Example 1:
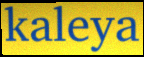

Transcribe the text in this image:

kaleya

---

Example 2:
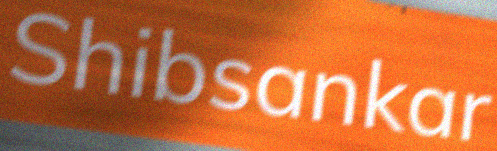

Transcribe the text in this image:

Shibsankar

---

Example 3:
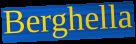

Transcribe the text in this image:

Berghella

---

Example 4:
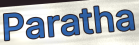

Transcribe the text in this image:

Paratha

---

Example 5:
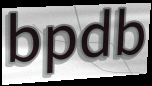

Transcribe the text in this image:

bpdb